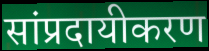
सांप्रदायीकरण